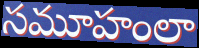
సమూహంలా